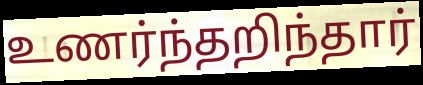
உணர்ந்தறிந்தார்